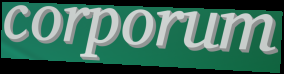
corporum